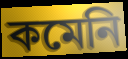
কমেনি